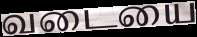
வடையை